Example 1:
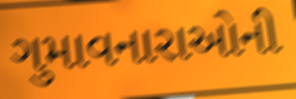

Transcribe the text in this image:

ગુમાવનારાઓની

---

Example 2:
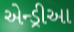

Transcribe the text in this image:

એન્ડ્રીઆ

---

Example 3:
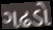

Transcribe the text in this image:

ગઢડો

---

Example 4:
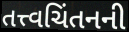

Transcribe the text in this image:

તત્ત્વચિંતનની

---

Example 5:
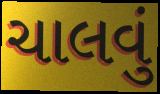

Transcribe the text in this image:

ચાલવું